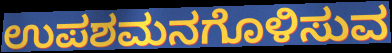
ಉಪಶಮನಗೊಳಿಸುವ